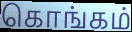
கொங்கம்